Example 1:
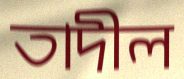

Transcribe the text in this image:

তাদীল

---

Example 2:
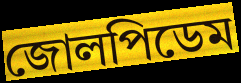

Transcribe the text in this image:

জোলপিডেম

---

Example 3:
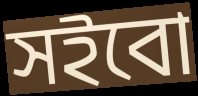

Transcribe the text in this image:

সইবো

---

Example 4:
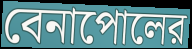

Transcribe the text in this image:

বেনাপোলের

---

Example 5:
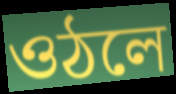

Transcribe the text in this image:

ওঠলে